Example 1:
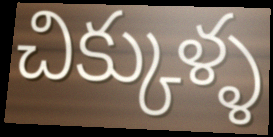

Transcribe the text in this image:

చిక్కుళ్ళ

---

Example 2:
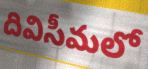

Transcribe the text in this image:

దివిసీమలో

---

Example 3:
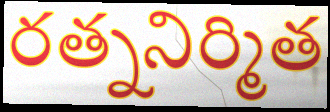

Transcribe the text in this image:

రత్ననిర్మిత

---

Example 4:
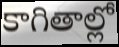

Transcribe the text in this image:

కాగితాల్లో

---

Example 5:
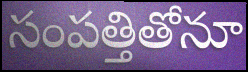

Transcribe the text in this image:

సంపత్తితోనూ